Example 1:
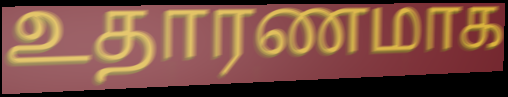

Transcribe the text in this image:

உதாரணமாக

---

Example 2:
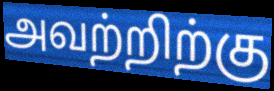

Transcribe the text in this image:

அவற்றிற்கு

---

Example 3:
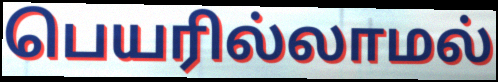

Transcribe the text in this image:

பெயரில்லாமல்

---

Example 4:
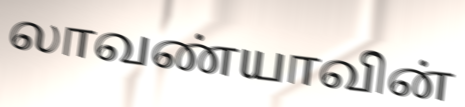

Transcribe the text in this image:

லாவண்யாவின்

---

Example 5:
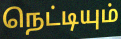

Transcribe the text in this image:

நெட்டியும்